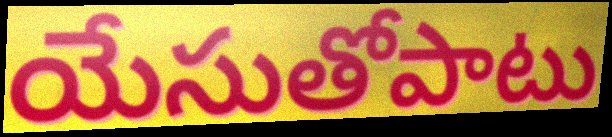
యేసుతోపాటు